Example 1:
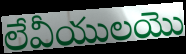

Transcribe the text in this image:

లేవీయులయొ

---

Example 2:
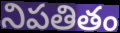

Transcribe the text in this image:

నిపతితం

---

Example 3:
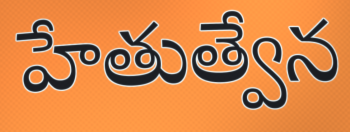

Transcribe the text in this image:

హేతుత్వేన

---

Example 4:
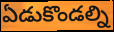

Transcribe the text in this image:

ఏడుకొండల్ని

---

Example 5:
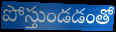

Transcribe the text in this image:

పోస్తుండడంతో